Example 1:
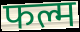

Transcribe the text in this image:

फल्म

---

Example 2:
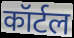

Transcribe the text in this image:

कॉर्टल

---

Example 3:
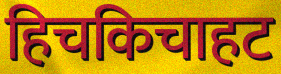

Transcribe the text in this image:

हिचकिचाहट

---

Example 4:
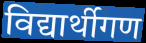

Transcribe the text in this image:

विद्यार्थीगण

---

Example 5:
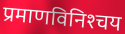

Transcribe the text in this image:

प्रमाणविनिश्चय